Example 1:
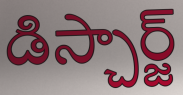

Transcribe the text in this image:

డిస్చార్జ్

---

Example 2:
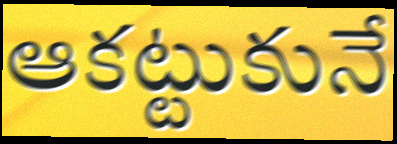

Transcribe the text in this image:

ఆకట్టుకునే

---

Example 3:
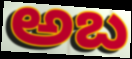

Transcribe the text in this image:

అబ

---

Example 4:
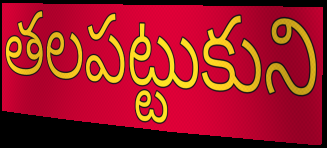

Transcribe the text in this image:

తలపట్టుకుని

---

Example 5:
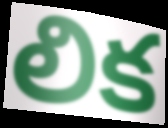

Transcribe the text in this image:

లిక